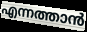
എന്നത്താൻ